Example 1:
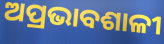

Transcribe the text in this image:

ଅପ୍ରଭାବଶାଳୀ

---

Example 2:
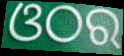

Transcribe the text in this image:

ଓଠର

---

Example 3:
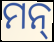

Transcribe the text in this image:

ମନ୍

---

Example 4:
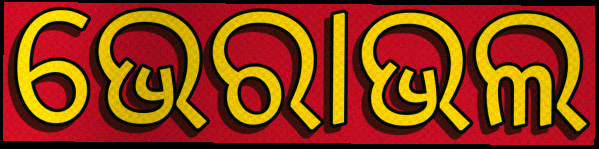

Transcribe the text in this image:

ଭେରାଭଲ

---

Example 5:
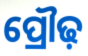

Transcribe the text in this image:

ପ୍ରୌଢ଼